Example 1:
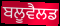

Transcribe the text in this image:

ਬਲੂਵੈਲਡ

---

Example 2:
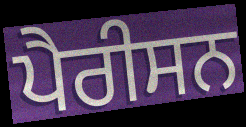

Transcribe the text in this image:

ਪੈਰੀਸਨ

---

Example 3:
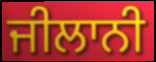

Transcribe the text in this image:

ਜੀਲਾਨੀ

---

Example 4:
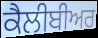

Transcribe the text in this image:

ਕੈਲੀਬੀਅਰ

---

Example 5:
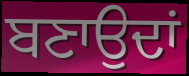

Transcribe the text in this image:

ਬਣਾਉਦਾਂ